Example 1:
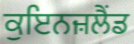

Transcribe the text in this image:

ਕੁਇਨਜ਼ਲੈਂਡ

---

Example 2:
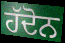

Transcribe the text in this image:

ਹੱਦੋਨ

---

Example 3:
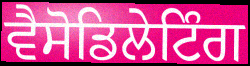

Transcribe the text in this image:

ਵੈਸੋਡਿਲੇਟਿੰਗ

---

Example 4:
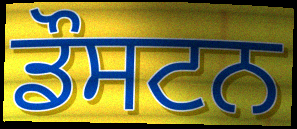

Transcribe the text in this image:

ਡੌਸਟਨ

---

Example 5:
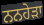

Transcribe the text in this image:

ਨਨਹੇੜਾ